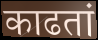
काढतां